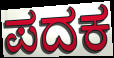
ಪದಕ